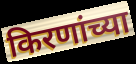
किरणांच्या